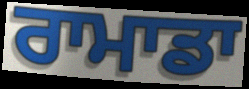
ਰਾਮਾਡਾ